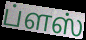
ப்ளஸ்